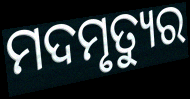
ମଦମୃତ୍ୟୁର